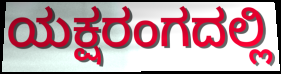
ಯಕ್ಷರಂಗದಲ್ಲಿ